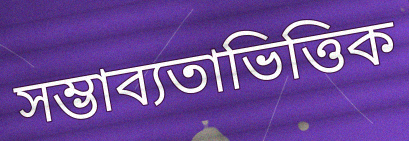
সম্ভাব্যতাভিত্তিক